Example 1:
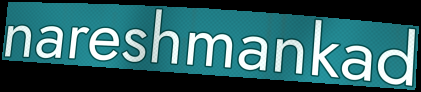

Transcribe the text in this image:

nareshmankad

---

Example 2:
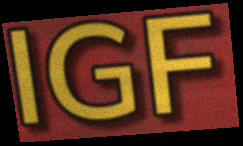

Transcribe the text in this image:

IGF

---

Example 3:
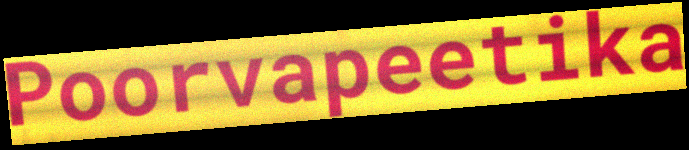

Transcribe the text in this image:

Poorvapeetika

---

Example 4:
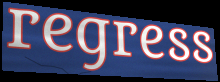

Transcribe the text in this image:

regress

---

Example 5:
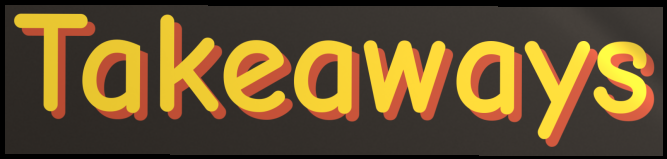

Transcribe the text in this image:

Takeaways